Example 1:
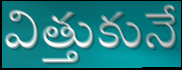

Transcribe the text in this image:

విత్తుకునే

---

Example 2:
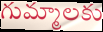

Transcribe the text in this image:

గుమ్మాలకు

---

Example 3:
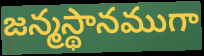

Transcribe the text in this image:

జన్మస్థానముగా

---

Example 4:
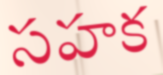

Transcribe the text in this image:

సహక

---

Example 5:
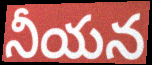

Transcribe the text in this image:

నీయన